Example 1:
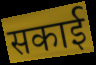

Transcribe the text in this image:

सकाई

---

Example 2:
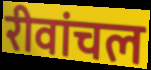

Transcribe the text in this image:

रीवांचल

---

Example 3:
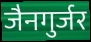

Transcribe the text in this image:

जैनगुर्जर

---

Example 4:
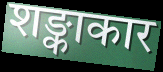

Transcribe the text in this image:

शङ्काकार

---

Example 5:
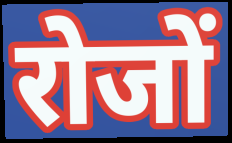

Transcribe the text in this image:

रोजों